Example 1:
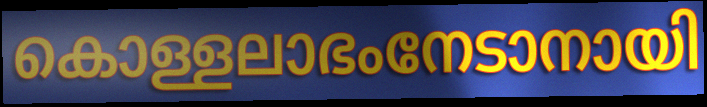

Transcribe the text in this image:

കൊള്ളലാഭംനേടാനായി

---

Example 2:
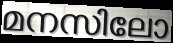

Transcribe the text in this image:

മനസിലോ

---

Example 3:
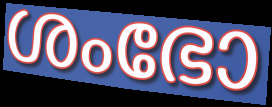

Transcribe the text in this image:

ശംഭോ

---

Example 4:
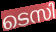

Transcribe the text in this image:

ടെസി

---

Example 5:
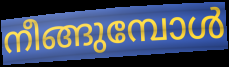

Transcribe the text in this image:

നീങ്ങുമ്പോൾ